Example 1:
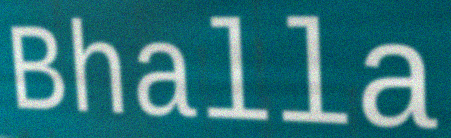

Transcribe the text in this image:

Bhalla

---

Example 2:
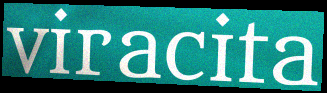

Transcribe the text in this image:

viracita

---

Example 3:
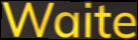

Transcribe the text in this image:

Waite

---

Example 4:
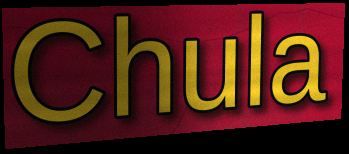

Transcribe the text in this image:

Chula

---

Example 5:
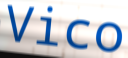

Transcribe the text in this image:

Vico